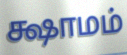
க்ஷாமம்